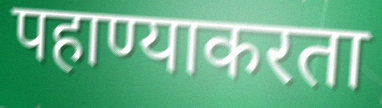
पहाण्याकरता